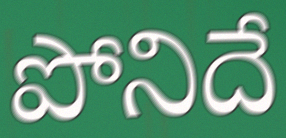
పోనిదే